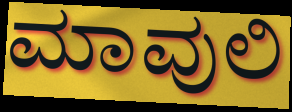
ಮಾವುಲಿ